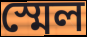
স্মেল